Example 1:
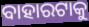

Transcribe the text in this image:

ବାହାରଟାକୁ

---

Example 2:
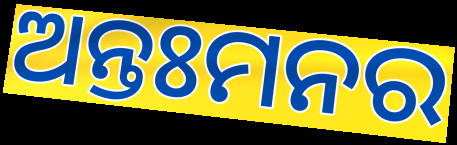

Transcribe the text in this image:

ଅନ୍ତଃମନର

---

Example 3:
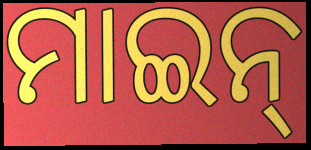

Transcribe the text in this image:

ମାଇନ୍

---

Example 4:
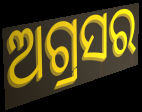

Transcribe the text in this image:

ଅଗ୍ରସର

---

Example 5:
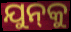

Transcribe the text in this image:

ଯୁନ୍‍କୁ